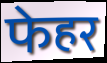
फेहर